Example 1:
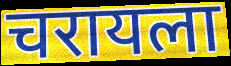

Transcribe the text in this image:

चरायला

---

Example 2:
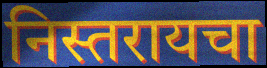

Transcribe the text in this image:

निस्तरायचा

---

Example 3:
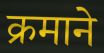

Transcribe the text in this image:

क्रमाने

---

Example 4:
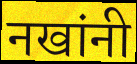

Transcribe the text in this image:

नखांनी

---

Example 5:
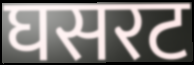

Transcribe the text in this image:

घसरट